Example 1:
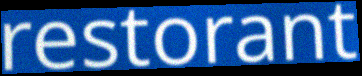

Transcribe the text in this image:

restorant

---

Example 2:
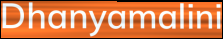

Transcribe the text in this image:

Dhanyamalini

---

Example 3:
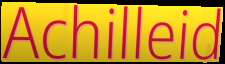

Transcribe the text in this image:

Achilleid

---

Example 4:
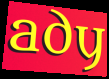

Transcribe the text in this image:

ady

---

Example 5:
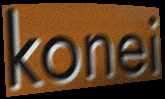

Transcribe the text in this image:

konei